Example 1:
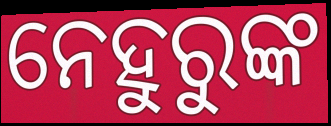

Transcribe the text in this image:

ନେହୁରୁଙ୍କ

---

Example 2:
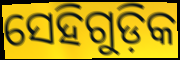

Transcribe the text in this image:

ସେହିଗୁଡ଼ିକ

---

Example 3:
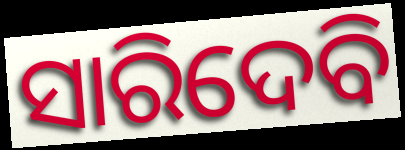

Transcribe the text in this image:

ସାରିଦେବି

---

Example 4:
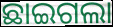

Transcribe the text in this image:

ଛାଇଗଲା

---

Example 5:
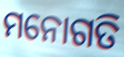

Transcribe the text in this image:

ମନୋଗତି